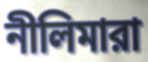
নীলিমারা